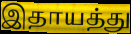
இதாயத்து